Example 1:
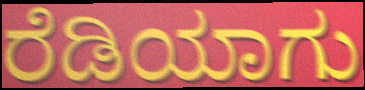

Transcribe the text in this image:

ರೆಡಿಯಾಗು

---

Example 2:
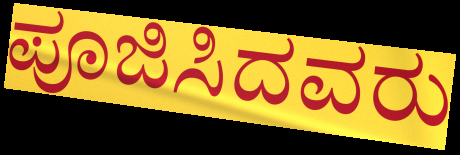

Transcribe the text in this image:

ಪೂಜಿಸಿದವರು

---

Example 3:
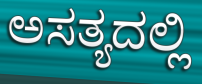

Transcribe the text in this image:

ಅಸತ್ಯದಲ್ಲಿ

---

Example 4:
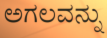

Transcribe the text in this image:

ಅಗಲವನ್ನು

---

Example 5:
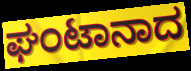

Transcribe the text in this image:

ಘಂಟಾನಾದ